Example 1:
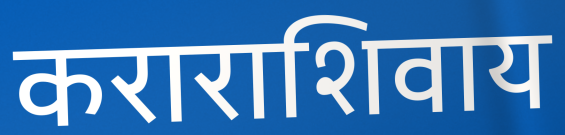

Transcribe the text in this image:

कराराशिवाय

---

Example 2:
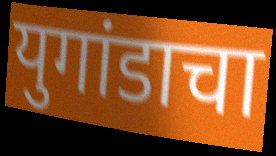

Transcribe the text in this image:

युगांडाचा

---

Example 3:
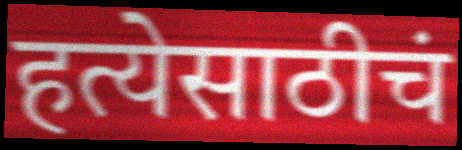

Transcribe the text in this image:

हत्येसाठीचं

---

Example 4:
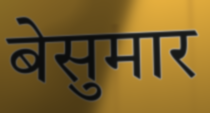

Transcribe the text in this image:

बेसुमार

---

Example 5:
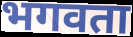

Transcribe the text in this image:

भगवता